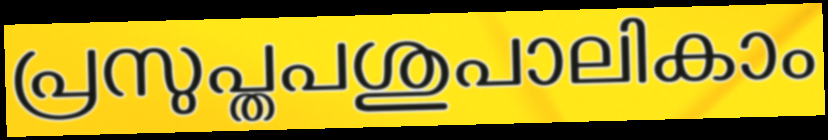
പ്രസുപ്തപശുപാലികാം